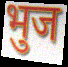
भुज